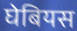
घेबियस